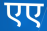
एए